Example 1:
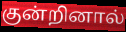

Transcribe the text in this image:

குன்றினால்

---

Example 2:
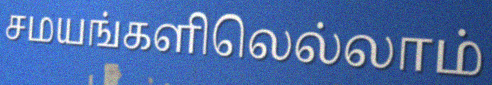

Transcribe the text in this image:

சமயங்களிலெல்லாம்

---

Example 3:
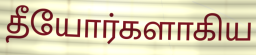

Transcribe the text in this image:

தீயோர்களாகிய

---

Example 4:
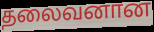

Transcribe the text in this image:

தலைவனான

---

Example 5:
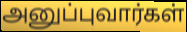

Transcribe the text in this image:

அனுப்புவார்கள்